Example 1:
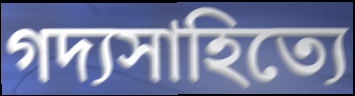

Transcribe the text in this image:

গদ্যসাহিত্যে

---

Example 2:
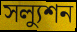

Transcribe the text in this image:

সল্যুশন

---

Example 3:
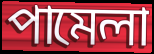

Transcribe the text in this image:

পামেলা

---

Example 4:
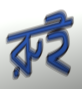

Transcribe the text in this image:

রুই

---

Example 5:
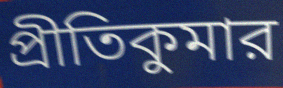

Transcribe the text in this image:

প্রীতিকুমার